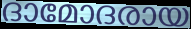
ദാമോദരായ